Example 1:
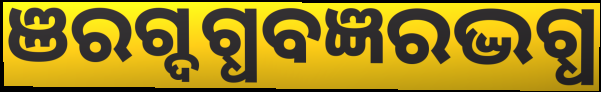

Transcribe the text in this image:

ଞରଗ୍ଦଗ୍ଧବଜ୍ଞରଦ୍ଭଗ୍ଧ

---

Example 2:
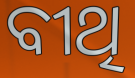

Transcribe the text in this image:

ବୀଥି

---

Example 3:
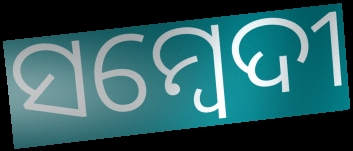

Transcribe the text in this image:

ସମ୍ବେଦୀ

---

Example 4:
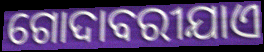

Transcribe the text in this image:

ଗୋଦାବରୀଯାଏ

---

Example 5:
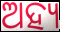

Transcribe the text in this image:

ଅହ୍ୟ